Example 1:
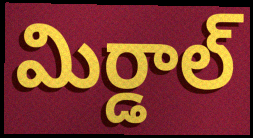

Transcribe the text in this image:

మిర్డాల్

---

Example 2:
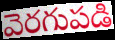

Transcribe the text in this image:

వెరగుపడి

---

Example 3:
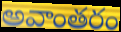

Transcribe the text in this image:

అవాంతరం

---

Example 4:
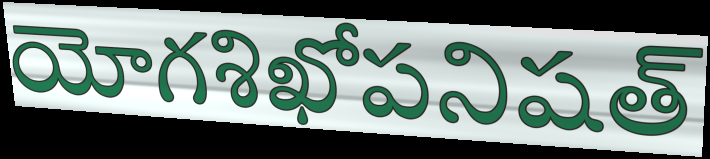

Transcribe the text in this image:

యోగశిఖోపనిషత్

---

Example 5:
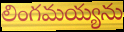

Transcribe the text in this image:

లింగమయ్యను